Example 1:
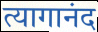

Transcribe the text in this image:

त्यागानंद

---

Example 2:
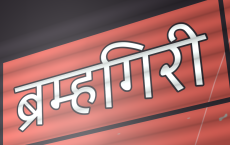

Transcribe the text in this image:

ब्रम्हगिरी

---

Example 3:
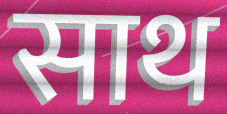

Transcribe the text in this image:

साथ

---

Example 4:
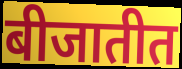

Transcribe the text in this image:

बीजातीत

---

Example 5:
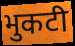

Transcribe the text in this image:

भुकटी